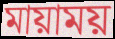
মায়াময়